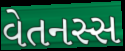
વેતનસ્સ